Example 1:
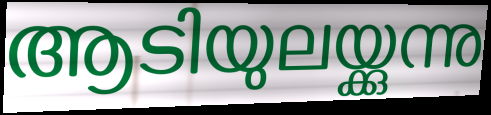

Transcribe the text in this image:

ആടിയുലയ്ക്കുന്നു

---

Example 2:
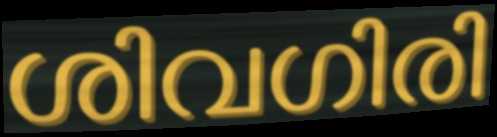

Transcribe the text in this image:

ശിവഗിരി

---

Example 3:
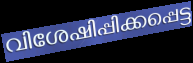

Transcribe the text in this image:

വിശേഷിപ്പിക്കപ്പെട്ട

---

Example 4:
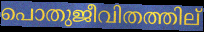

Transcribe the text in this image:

പൊതുജീവിതത്തില്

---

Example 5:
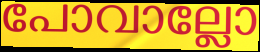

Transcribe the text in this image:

പോവാല്ലോ